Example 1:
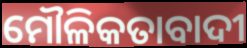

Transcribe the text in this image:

ମୌଳିକତାବାଦୀ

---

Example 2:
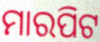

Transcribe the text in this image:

ମାରପିଟ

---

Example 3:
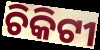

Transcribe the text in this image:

ଚିକିଟୀ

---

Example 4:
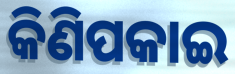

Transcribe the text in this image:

କିଣିପକାଇ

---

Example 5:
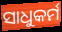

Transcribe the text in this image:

ସାଧୁକର୍ମ